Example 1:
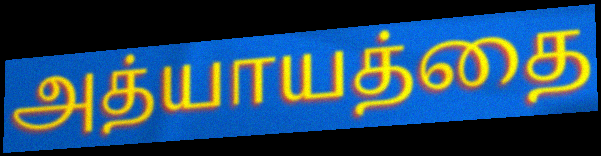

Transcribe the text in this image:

அத்யாயத்தை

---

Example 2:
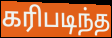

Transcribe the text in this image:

கரிபடிந்த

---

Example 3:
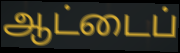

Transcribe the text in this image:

ஆட்டைப்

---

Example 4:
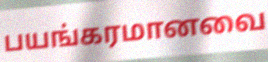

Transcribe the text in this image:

பயங்கரமானவை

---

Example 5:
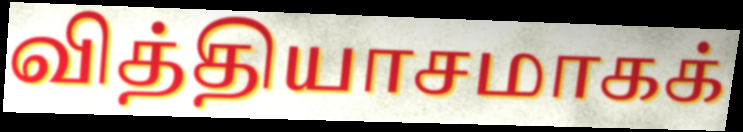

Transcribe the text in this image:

வித்தியாசமாகக்